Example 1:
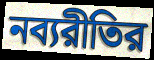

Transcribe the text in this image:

নব্যরীতির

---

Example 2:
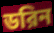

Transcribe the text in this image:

ডরিন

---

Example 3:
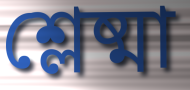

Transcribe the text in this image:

শ্লেষ্মা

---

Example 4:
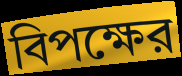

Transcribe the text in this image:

বিপক্ষের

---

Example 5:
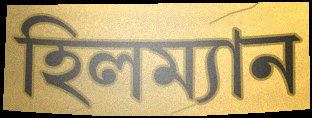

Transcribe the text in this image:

হিলম্যান